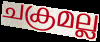
ചക്രമല്ല